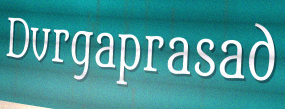
Durgaprasad